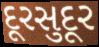
દૂરસુદૂર